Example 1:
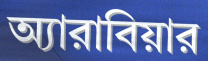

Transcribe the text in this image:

অ্যারাবিয়ার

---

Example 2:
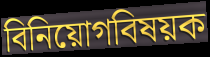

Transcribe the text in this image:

বিনিয়োগবিষয়ক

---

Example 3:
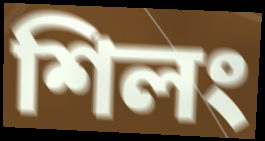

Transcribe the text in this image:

শিলং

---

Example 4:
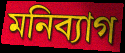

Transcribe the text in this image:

মনিব্যাগ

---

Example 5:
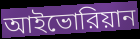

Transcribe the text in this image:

আইভোরিয়ান